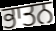
ਭਾਤਨ